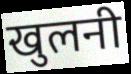
खुलनी